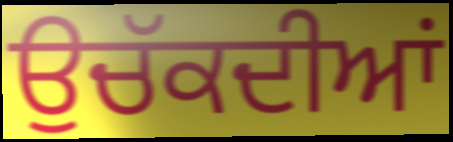
ਉਚੱਕਦੀਆਂ